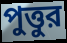
পুত্তুর